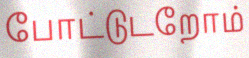
போட்டுடறோம்